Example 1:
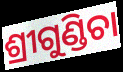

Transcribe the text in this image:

ଶ୍ରୀଗୁଣ୍ଡିଚା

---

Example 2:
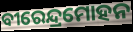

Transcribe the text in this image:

ବୀରେନ୍ଦ୍ରମୋହନ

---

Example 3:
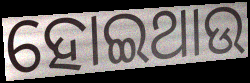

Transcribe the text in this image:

ହୋଇଥାଉ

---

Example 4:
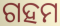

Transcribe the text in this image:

ଗହମ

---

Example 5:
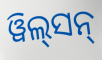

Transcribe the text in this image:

ୱିଲ୍‌ସନ୍